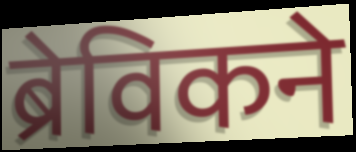
ब्रेविकने